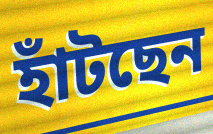
হাঁটছেন